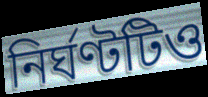
নির্ঘণ্টটিও